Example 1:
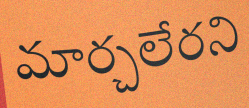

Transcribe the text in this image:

మార్చలేరని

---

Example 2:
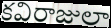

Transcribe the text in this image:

కవిరాజులా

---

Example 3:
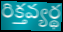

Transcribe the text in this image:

రిక్తవ్యర్థ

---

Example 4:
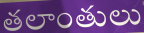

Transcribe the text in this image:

తలాంతులు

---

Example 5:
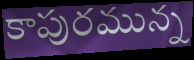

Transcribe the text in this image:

కాపురమున్న